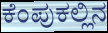
ಕೆಂಪುಕಲ್ಲಿನ